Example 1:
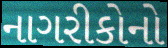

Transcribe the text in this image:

નાગરીકોનો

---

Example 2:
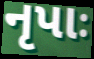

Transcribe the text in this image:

નૃપાઃ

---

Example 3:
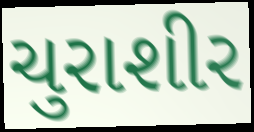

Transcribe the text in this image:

ચુરાશીર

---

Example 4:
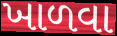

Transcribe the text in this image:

ખાળવા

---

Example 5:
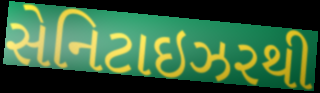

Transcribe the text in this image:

સેનિટાઇઝરથી